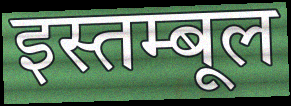
इस्तम्बूल